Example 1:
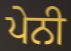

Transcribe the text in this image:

ਪੇਨੀ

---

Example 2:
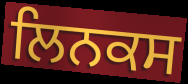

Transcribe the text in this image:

ਲਿਨਕਸ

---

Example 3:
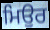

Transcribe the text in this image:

ਮਿਉਰ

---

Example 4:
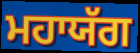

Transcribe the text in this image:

ਮਹਾਯੱਗ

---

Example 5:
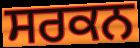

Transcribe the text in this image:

ਸਰਕਨ